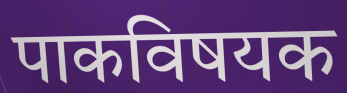
पाकविषयक